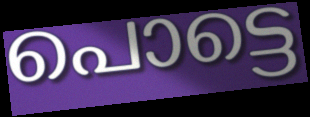
പൊട്ടെ